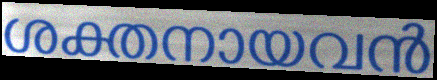
ശക്തനായവൻ